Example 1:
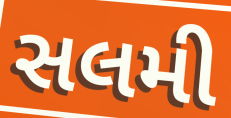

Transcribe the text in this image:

સલમી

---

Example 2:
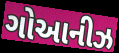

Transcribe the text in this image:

ગોઆનીઝ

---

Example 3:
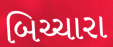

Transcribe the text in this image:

બિચ્ચારા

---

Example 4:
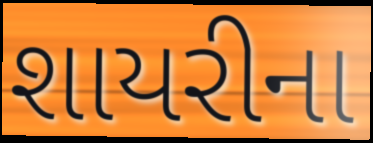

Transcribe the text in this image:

શાયરીના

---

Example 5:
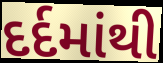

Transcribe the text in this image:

દર્દમાંથી